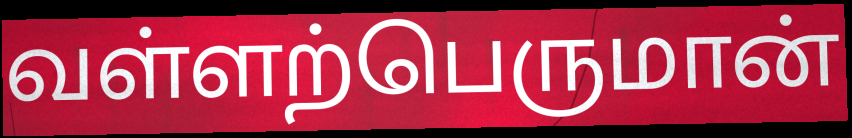
வள்ளற்பெருமான்